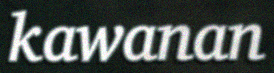
kawanan